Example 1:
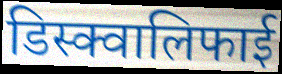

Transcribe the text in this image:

डिस्क्वालिफाई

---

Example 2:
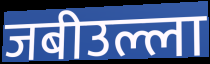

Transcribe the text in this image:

जबीउल्ला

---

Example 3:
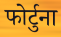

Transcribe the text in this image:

फोर्टुना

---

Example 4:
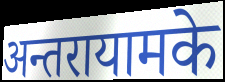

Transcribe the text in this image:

अन्तरायामके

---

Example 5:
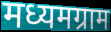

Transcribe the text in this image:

मध्यमग्राम